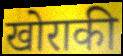
खोराकी